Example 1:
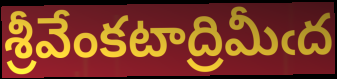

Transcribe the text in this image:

శ్రీవేంకటాద్రిమీఁద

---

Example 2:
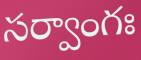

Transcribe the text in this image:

సర్వాంగః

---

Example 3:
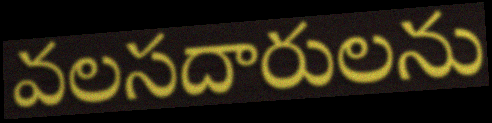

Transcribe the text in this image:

వలసదారులను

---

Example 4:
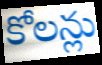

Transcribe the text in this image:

కోలన్లు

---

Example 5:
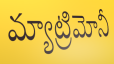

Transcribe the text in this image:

మ్యాట్రిమోనీ